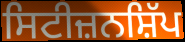
ਸਿਟੀਜ਼ਨਸ਼ਿੱਪ